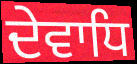
ਦੇਵਾਧਿ